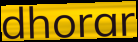
dhorar